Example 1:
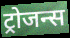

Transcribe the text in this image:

ट्रोजन्स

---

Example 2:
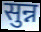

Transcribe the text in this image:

सुन्न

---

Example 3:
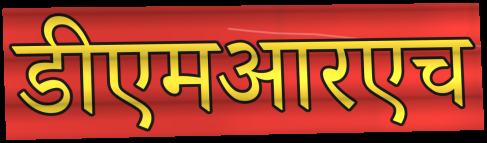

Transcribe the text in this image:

डीएमआरएच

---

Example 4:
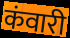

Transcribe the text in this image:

कंवारी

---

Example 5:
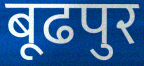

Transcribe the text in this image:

बूढपुर